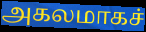
அகலமாகச்